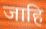
जाहि